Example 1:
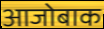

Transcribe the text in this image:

आजोबाक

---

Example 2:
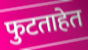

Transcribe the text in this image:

फुटताहेत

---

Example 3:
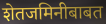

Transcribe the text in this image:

शेतजमिनीबाबत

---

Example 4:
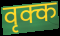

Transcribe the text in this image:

वृक्क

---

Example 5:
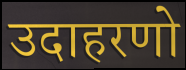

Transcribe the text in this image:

उदाहरणो